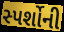
સ્પર્શોની